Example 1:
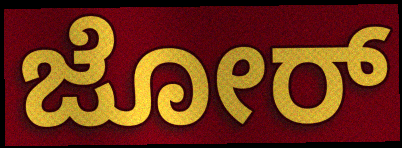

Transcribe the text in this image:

ಜೋರ್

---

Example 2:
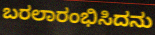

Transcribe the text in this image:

ಬರಲಾರಂಭಿಸಿದನು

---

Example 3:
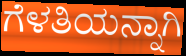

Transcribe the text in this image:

ಗೆಳತಿಯನ್ನಾಗಿ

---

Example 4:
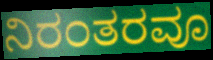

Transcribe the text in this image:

ನಿರಂತರವೂ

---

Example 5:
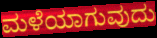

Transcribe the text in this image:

ಮಳೆಯಾಗುವುದು